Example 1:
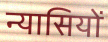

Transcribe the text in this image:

न्यासियों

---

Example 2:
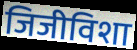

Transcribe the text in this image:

जिजीविशा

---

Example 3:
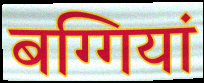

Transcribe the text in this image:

बग्गियां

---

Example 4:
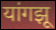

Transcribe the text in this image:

यांगझू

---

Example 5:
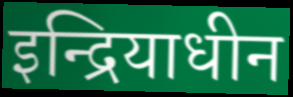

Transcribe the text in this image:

इन्द्रियाधीन